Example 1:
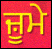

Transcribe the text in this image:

ਜ਼ੂਮੇ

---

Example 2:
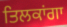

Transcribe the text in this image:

ਤਿਲਕਾਂਗਾ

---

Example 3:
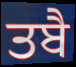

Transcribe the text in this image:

ਤਬੈ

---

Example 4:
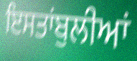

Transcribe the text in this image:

ਇਸਤਾਂਬੁਲੀਆਂ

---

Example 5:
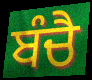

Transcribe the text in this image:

ਬੰਚੈ